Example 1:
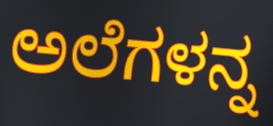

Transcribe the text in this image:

ಅಲೆಗಳನ್ನ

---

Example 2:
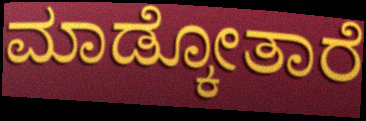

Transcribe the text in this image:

ಮಾಡ್ಕೋತಾರೆ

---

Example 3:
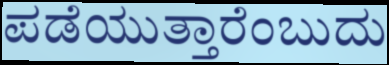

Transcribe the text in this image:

ಪಡೆಯುತ್ತಾರೆಂಬುದು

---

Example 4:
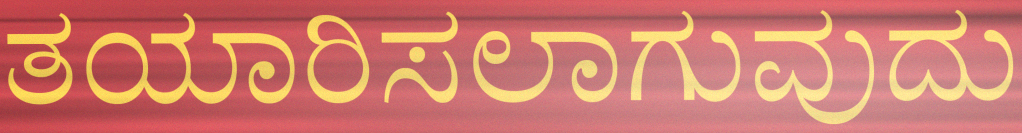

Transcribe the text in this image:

ತಯಾರಿಸಲಾಗುವುದು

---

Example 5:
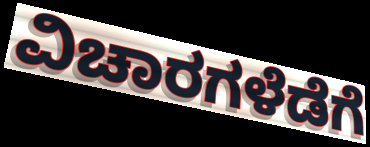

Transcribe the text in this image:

ವಿಚಾರಗಳೆಡೆಗೆ